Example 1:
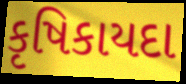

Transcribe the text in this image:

કૃષિકાયદા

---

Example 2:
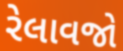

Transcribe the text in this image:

રેલાવજો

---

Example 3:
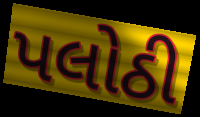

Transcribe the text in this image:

પલોઠી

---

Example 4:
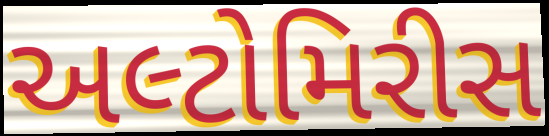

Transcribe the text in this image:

અલ્ટોમિરીસ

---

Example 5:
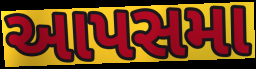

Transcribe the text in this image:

આપસમા